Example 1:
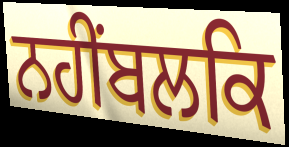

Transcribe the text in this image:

ਨਹੀਂਬਲਕਿ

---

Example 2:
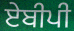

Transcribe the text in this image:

ਏਬੀਪੀ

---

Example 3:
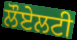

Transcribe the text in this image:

ਲੌਏਲਟੀ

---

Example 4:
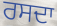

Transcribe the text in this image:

ਰਸਦਾ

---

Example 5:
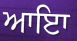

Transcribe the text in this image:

ਆਇਾ